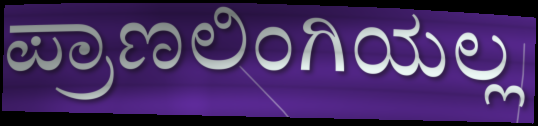
ಪ್ರಾಣಲಿಂಗಿಯಲ್ಲ